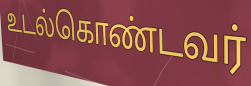
உடல்கொண்டவர்